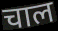
चाल